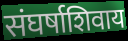
संघर्षाशिवाय